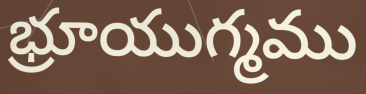
భ్రూయుగ్మము